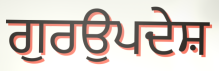
ਗੁਰਉਪਦੇਸ਼